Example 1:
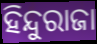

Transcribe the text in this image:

ହିନ୍ଦୁରାଜା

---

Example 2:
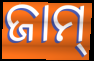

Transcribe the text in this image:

ଜାମ୍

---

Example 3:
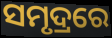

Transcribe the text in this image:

ସମୃଦ୍ରରେ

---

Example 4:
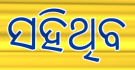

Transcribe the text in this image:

ସହିଥିବ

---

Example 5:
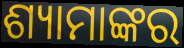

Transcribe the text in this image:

ଶ୍ୟାମାଙ୍କର